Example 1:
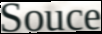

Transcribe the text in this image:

Souce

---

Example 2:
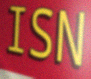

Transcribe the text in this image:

ISN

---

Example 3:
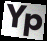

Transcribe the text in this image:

Yp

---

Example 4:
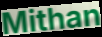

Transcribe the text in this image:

Mithan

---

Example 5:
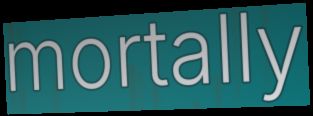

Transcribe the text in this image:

mortally